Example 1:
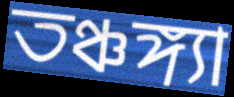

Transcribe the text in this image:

তঞ্চঙ্গ্যা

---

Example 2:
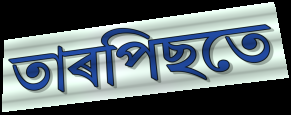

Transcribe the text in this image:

তাৰপিছতে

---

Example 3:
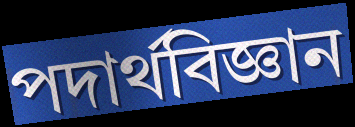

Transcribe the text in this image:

পদাৰ্থবিজ্ঞান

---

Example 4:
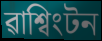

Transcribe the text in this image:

ৱাশ্বিংটন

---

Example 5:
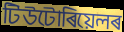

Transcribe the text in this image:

টিউটোৰিয়েলৰ